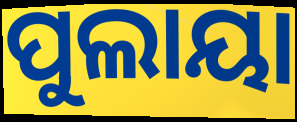
ପୁଲାୟା